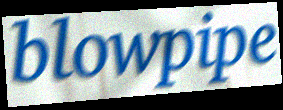
blowpipe